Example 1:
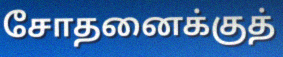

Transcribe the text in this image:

சோதனைக்குத்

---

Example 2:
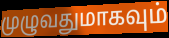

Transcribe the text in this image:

முழுவதுமாகவும்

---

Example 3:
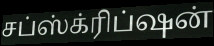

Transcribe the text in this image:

சப்ஸ்க்ரிப்ஷன்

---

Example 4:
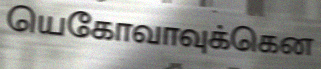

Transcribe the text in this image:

யெகோவாவுக்கென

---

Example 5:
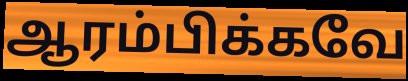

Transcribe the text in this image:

ஆரம்பிக்கவே